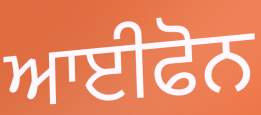
ਆਈਫੋਨ